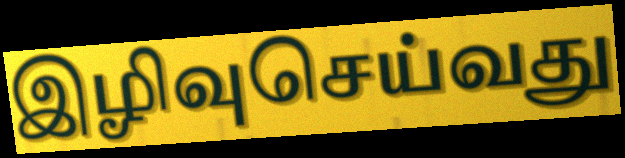
இழிவுசெய்வது